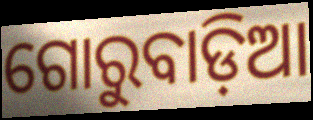
ଗୋରୁବାଡ଼ିଆ